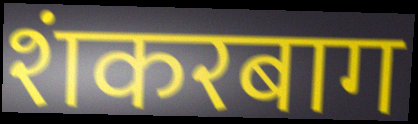
शंकरबाग